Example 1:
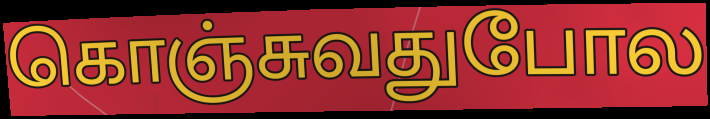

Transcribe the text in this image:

கொஞ்சுவதுபோல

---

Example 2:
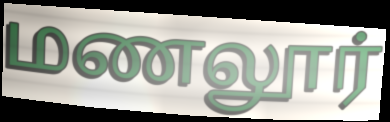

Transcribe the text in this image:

மணலூர்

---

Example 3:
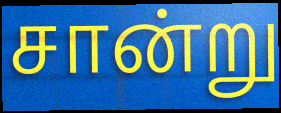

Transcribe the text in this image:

சான்று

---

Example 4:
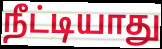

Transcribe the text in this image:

நீட்டியாது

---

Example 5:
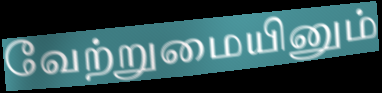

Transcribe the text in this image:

வேற்றுமையினும்